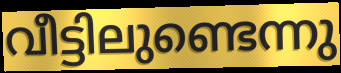
വീട്ടിലുണ്ടെന്നു